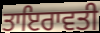
ਤਾਇਰਾਵਤੀ